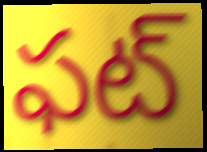
ఫట్